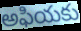
అఫియకు